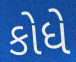
કોધે